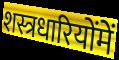
शस्त्रधारियोंमें